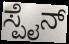
ಸ್ಪೈನ್